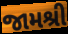
જામશ્રી